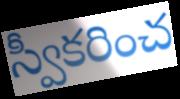
స్వీకరించ